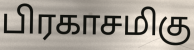
பிரகாசமிகு